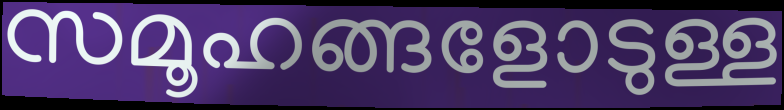
സമൂഹങ്ങളോടുള്ള